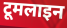
टूमलाइन